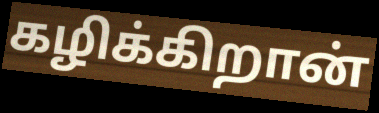
கழிக்கிறான்